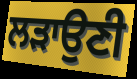
ਲੜਾਉਣੀ